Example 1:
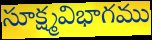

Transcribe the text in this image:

సూక్ష్మవిభాగము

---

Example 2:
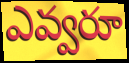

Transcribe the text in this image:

ఎవ్వరూ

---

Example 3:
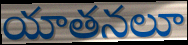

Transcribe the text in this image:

యాతనలూ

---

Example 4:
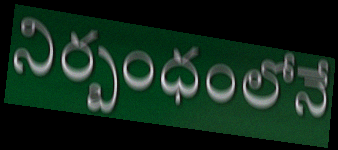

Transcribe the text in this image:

నిర్బంధంలోనే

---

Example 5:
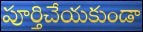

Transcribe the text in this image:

పూర్తిచేయకుండా